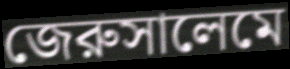
জেরুসালেমে